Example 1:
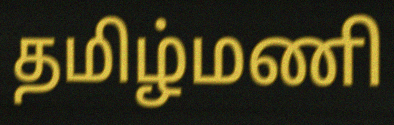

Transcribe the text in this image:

தமிழ்மணி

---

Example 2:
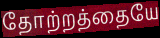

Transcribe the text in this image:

தோற்றத்தையே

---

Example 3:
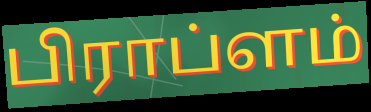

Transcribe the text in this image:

பிராப்ளம்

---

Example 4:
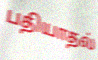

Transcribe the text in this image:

பதியாதல்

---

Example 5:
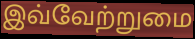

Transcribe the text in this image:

இவ்வேற்றுமை